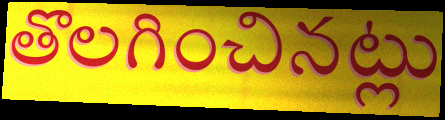
తొలగించినట్లు